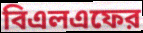
বিএলএফের